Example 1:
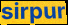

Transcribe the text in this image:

sirpur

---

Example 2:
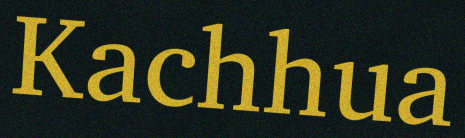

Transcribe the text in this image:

Kachhua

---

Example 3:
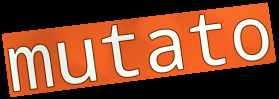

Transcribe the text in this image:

mutato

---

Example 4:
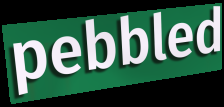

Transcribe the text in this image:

pebbled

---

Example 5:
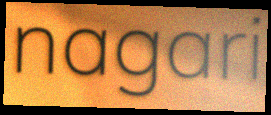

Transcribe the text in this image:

nagari